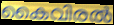
കൈവിരൽ